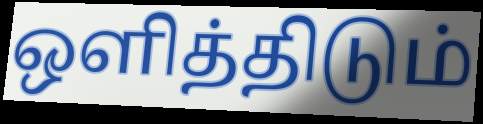
ஒளித்திடும்